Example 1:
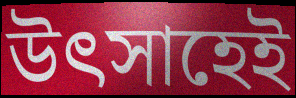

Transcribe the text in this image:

উৎসাহেই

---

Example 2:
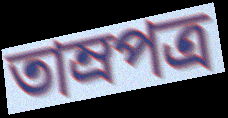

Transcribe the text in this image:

তাম্রপত্র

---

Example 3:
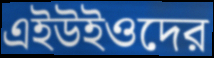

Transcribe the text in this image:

এইউইওদের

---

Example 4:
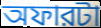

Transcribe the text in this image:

অফারটা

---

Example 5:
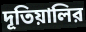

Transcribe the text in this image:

দূতিয়ালির